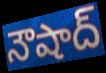
నౌషాద్